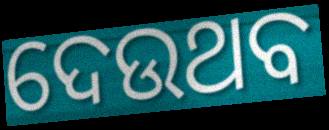
ଦେଉଥବ